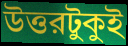
উত্তরটুকুই